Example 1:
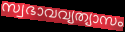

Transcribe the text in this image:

സ്വഭാവവ്യത്യാസം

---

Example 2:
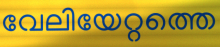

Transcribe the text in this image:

വേലിയേറ്റത്തെ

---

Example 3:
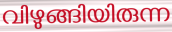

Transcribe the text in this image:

വിഴുങ്ങിയിരുന്ന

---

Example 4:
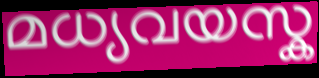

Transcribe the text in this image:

മധ്യവയസ്ക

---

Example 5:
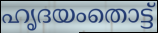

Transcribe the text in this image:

ഹൃദയംതൊട്ട്